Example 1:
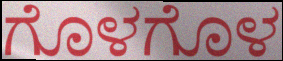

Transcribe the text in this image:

ಗೊಳಗೊಳ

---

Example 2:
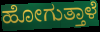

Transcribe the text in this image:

ಹೋಗುತ್ತಾಳೆ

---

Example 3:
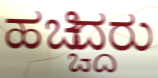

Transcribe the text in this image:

ಹಚ್ಚಿದ್ದರು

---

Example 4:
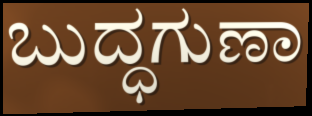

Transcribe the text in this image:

ಬುದ್ಧಗುಣಾ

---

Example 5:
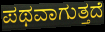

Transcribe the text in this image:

ಪಥವಾಗುತ್ತದೆ